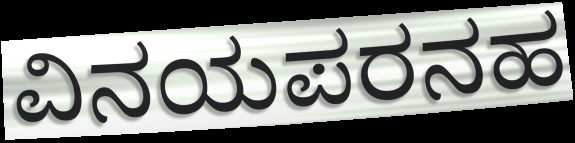
ವಿನಯಪರನಹ